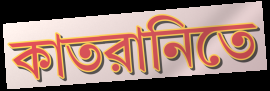
কাতরানিতে